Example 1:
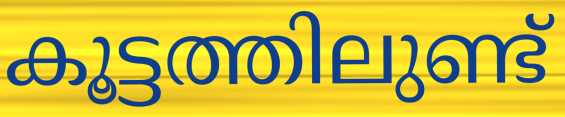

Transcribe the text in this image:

കൂട്ടത്തിലുണ്ട്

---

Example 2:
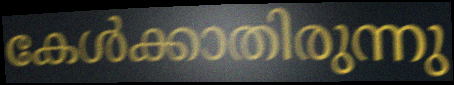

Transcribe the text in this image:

കേൾക്കാതിരുന്നു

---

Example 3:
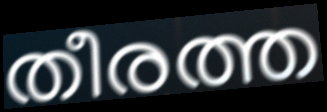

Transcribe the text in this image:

തീരത്ത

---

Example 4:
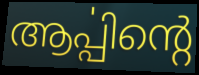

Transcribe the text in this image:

ആൎപ്പിന്റെ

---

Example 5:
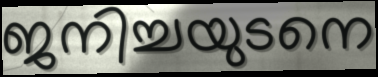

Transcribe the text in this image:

ജനിച്ചയുടനെ